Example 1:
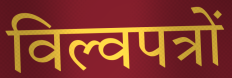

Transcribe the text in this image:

विल्वपत्रों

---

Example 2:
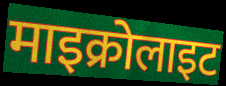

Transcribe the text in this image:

माइक्रोलाइट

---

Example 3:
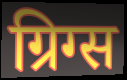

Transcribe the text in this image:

ग्रिग्स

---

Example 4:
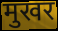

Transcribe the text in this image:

मुखर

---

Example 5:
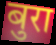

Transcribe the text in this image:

बुरा